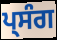
ਪ੍ਸੰਗ